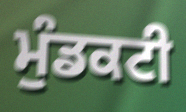
ਮੁੰਡਕਟੀ